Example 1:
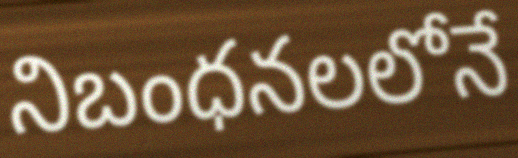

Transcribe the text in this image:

నిబంధనలలోనే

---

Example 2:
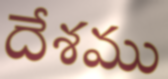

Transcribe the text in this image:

దేశము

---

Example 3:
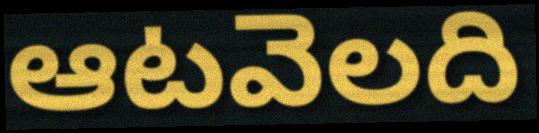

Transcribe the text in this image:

ఆటవెలది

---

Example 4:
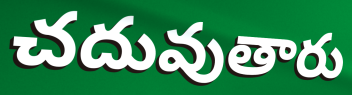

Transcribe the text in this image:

చదువుతారు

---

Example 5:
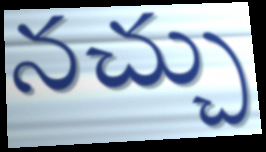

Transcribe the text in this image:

నచ్చు